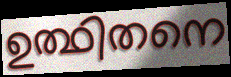
ഉത്ഥിതനെ